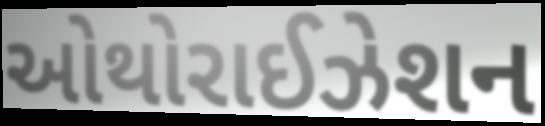
ઓથોરાઈઝેશન